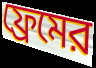
ফ্রেমের